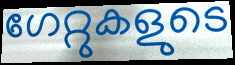
ഗേറ്റുകളുടെ